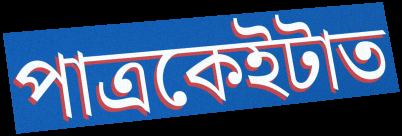
পাত্ৰকেইটাত